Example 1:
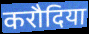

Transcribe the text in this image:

करौदिया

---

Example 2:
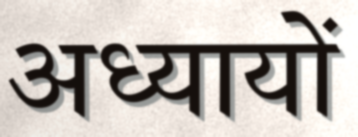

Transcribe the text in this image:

अध्यायों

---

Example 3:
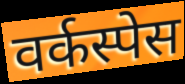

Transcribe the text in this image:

वर्कस्पेस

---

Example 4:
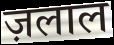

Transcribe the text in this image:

ज़लाल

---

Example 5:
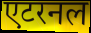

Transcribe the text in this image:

एटरनल